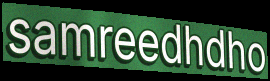
samreedhdho